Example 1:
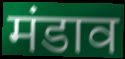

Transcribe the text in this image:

मंडाव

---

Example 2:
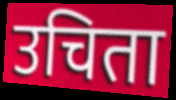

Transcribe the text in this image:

उचिता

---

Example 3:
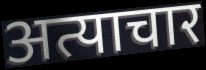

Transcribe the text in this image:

अत्याचार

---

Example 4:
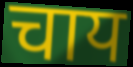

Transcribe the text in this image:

चाय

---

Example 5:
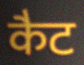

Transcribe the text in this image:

कैट